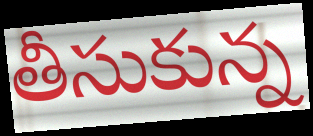
తీసుకున్న